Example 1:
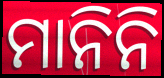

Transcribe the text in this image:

ମାନିନି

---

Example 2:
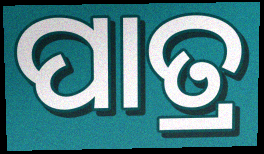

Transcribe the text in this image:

ପାତ୍ର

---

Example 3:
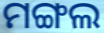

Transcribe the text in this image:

ମଙ୍ଗଲ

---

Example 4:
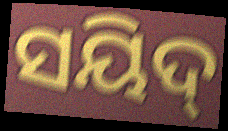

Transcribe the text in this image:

ସୟିଦ୍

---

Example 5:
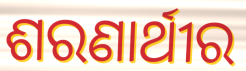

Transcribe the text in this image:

ଶରଣାର୍ଥୀର